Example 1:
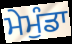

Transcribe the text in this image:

ਮੇਮੁੰਡਾ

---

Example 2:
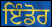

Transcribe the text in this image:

ਇੰਡੋਰ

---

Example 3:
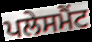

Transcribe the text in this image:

ਪਲੇਸਮੈਂਟ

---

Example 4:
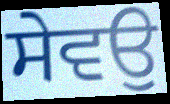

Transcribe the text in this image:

ਸੇਵਉ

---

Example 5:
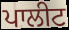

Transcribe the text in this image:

ਪਾਲੀਟ